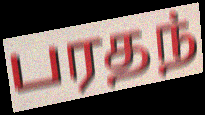
பரதந்